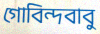
গোবিন্দবাবু